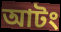
আটং